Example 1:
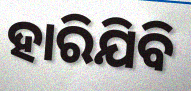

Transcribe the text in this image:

ହାରିଯିବି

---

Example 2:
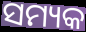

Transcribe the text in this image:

ସମ୍ୟକ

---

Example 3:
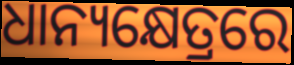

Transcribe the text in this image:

ଧାନ୍ୟକ୍ଷେତ୍ରରେ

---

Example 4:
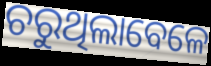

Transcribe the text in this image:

ଚରୁଥିଲାବେଳେ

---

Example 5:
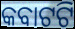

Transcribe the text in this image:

କବାଟଟି